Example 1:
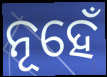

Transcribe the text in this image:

ନୂହେଁ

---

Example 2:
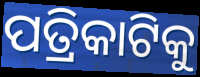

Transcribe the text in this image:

ପତ୍ରିକାଟିକୁ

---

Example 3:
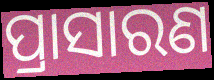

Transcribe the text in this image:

ପ୍ରାସାରଣ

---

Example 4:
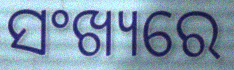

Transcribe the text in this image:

ସଂଖ୍ୟରେ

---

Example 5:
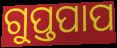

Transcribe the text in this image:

ଗୁପ୍ତପାପ